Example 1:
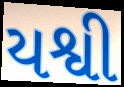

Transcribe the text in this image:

યશ્વી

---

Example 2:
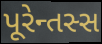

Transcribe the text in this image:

પૂરેન્તસ્સ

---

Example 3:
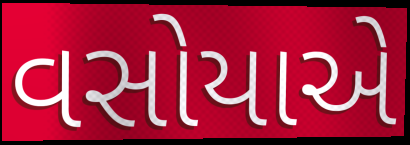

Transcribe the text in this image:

વસોયાએ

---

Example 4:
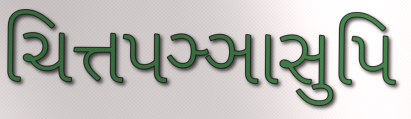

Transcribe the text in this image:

ચિત્તપઞ્ઞાસુપિ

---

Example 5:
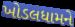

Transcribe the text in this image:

ખોડલધામને